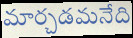
మార్చడమనేది